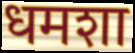
धमशा